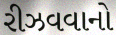
રીઝવવાનો